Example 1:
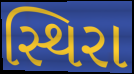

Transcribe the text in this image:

સ્થિરા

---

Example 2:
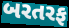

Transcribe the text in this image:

બરતરફ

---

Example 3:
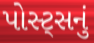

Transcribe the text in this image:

પોસ્ટ્સનું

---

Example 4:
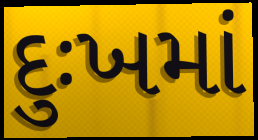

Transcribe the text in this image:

દુઃખમાં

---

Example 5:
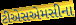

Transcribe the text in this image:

ટીએસએમસીના